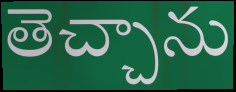
తెచ్చాను